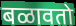
बळावतो